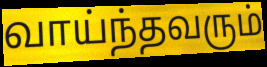
வாய்ந்தவரும்